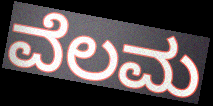
ವೆಲಮ